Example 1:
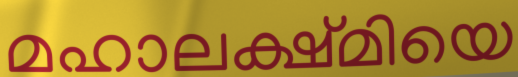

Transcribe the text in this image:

മഹാലക്ഷ്മിയെ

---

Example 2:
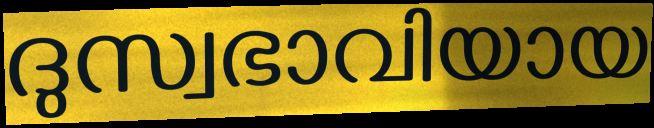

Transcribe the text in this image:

ദുസ്വഭാവിയായ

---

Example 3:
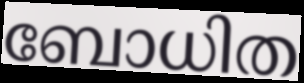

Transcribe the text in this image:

ബോധിത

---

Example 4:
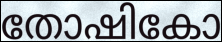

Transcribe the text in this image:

തോഷികോ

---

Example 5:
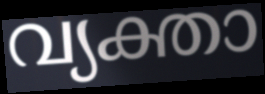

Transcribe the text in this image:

വ്യക്താ